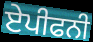
ਏਪੀਫਨੀ